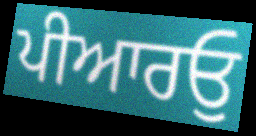
ਪੀਆਰਓੁ